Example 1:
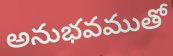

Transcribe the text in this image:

అనుభవముతో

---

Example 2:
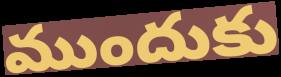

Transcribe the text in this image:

ముందుకు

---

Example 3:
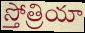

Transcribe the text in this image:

స్తోత్రియా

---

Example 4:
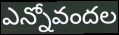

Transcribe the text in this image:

ఎన్నోవందల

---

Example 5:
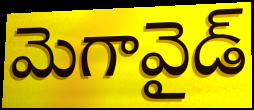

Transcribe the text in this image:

మెగావైడ్